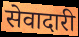
सेवादारी